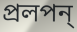
প্রলপন্